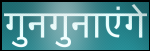
गुनगुनाएंगे